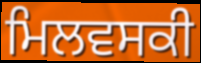
ਮਿਲਵਸਕੀ